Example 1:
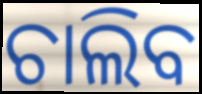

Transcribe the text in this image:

ଚାଲିବ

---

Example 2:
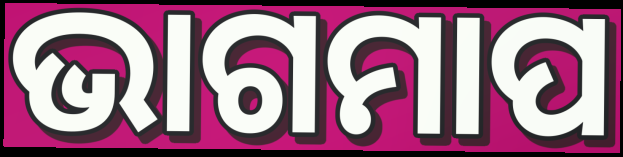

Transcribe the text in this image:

ଭାଗମାପ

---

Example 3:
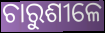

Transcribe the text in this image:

ଚାରୁଶୀଳେ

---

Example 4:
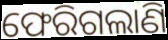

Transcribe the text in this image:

ଫେରିଗଲାଣି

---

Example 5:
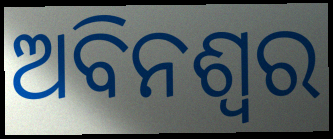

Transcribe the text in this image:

ଅବିନଶ୍ଵର